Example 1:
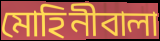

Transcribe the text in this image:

মোহিনীবালা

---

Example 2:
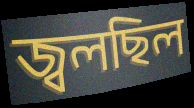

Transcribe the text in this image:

জ্বলছিল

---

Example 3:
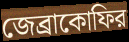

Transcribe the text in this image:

জেব্রাকোফির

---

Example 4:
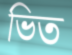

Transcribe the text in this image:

ভিত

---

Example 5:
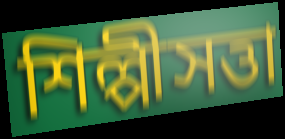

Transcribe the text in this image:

শিল্পীসত্তা